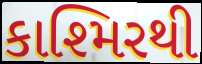
કાશ્મિરથી